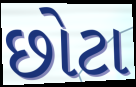
છોટા